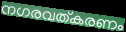
നഗരവത്കരണം